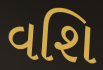
વશિ